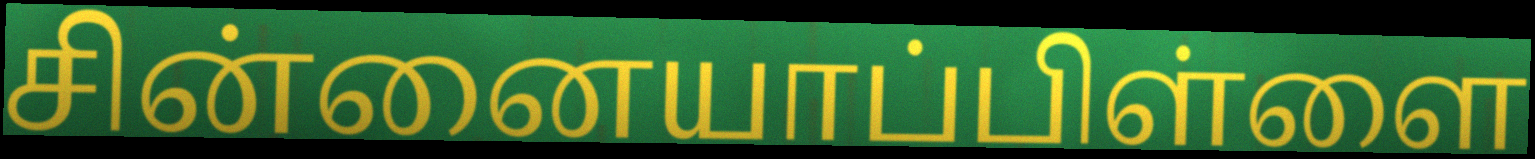
சின்னையாப்பிள்ளை